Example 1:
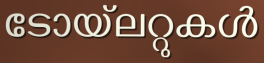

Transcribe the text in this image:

ടോയ്‌ലറ്റുകൾ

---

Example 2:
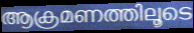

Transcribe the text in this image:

ആക്രമണത്തിലൂടെ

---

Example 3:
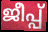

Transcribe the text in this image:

ജീപ്പ്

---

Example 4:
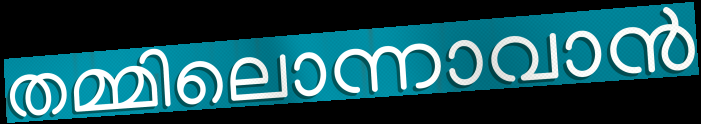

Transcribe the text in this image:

തമ്മിലൊന്നാവാൻ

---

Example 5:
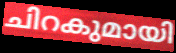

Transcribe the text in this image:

ചിറകുമായി